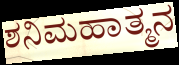
ಶನಿಮಹಾತ್ಮನ